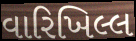
વારિખિલ્લ